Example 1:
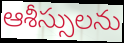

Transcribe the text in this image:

ఆశీస్సులను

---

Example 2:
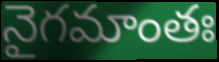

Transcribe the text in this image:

నైగమాంతః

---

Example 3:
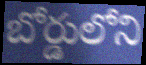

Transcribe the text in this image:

బోర్డులోని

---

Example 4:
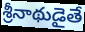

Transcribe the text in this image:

శ్రీనాథుడైతే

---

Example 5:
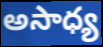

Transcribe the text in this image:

అసాధ్య